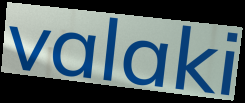
valaki